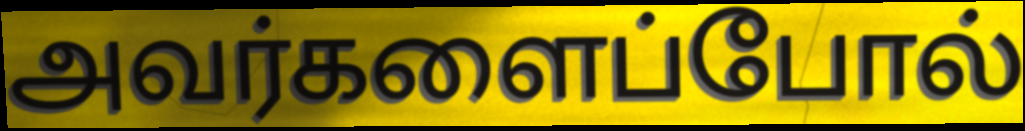
அவர்களைப்போல்